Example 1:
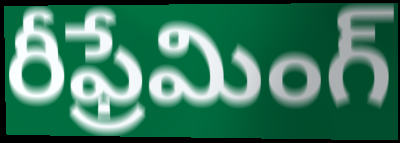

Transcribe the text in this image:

రీఫ్రేమింగ్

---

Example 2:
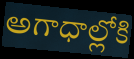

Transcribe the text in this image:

అగాధాల్లోకి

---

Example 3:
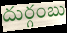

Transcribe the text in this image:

దుర్గంబు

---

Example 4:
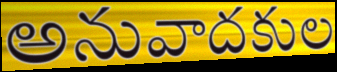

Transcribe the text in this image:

అనువాదకుల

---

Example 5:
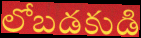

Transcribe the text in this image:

లోబడకుడి